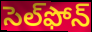
సెల్‌ఫోన్